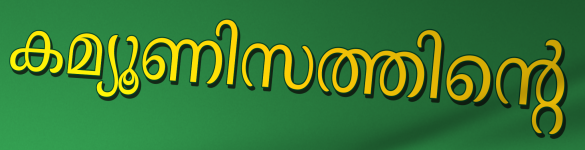
കമ്യൂണിസത്തിന്റെ